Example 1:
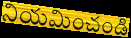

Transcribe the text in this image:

నియమించండి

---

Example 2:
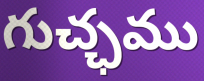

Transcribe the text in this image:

గుచ్ఛము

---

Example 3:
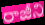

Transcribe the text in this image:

రాజీని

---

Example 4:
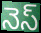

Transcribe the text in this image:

నెస్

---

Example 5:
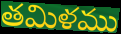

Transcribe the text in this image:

తమిళము